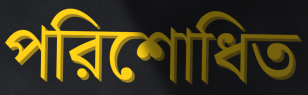
পরিশোধিত